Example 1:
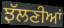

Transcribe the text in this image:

ਝੱਲਣੀਆਂ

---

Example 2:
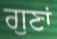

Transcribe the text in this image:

ਗੁਣਾਂ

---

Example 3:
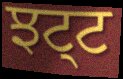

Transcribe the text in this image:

ਝਟ੍ਟ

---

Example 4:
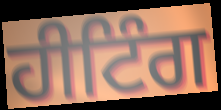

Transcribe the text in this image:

ਹੀਟਿੰਗ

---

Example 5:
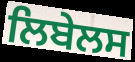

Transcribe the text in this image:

ਲਿਬੇਲਸ